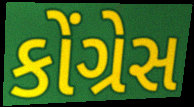
કોંગ્રેસ